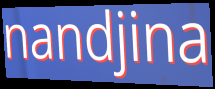
nandjina